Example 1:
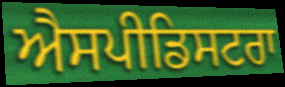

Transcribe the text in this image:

ਐਸਪੀਡਿਸਟਰਾ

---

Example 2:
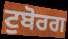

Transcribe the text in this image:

ਟੁਬੋਰਗ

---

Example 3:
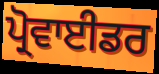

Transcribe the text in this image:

ਪ੍ਰੋਵਾਈਡਰ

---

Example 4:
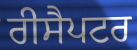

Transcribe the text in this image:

ਰੀਸੈਪਟਰ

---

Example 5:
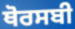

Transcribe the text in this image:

ਥੋਰਸਬੀ